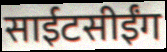
साईटसीईंग